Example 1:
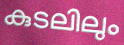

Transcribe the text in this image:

കുടലിലും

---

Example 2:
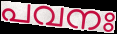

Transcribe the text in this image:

പവനഃ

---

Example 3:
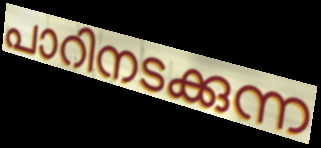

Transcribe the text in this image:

പാറിനടക്കുന്ന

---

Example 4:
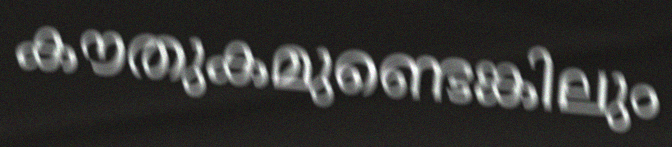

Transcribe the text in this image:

കൗതുകമുണ്ടെങ്കിലും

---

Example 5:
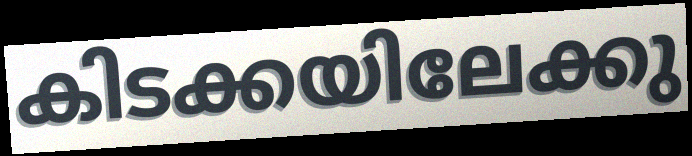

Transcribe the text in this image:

കിടക്കയിലേക്കു